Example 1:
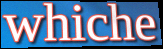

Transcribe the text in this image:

whiche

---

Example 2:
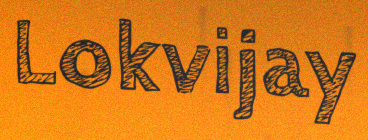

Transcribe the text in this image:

Lokvijay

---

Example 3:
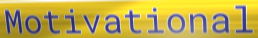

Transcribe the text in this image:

Motivational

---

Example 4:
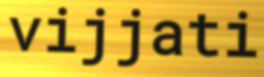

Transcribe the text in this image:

vijjati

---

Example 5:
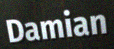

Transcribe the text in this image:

Damian